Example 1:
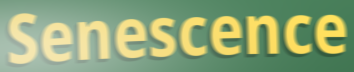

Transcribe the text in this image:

Senescence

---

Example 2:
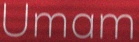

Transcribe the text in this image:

Umam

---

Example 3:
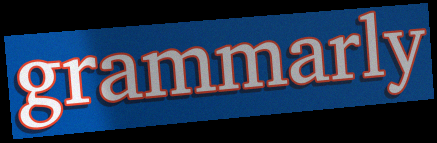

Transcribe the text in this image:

grammarly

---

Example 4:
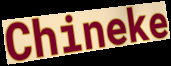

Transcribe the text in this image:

Chineke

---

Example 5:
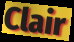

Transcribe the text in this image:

Clair